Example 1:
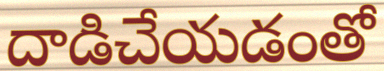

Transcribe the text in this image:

దాడిచేయడంతో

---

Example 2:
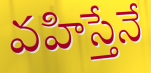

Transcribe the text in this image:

వహిస్తేనే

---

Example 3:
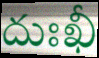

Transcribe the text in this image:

దుఃఖీ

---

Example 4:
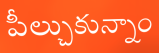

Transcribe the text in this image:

పీల్చుకున్నాం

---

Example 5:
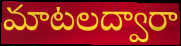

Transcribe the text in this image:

మాటలద్వారా